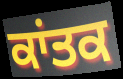
ਕਾਂਤਕ